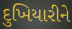
દુખિયારીને